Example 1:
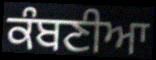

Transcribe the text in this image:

ਕੰਬਣੀਆ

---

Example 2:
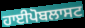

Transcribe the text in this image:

ਹਾਈਪੋਬਲਾਸਟ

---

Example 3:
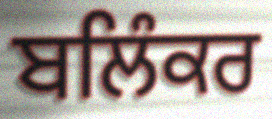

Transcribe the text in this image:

ਬਲਿੰਕਰ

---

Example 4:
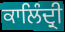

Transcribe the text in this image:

ਕਾਲਿੰਦ੍ਰੀ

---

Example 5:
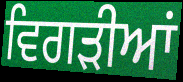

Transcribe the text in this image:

ਵਿਗੜੀਆਂ